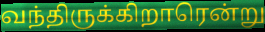
வந்திருக்கிறாரென்று